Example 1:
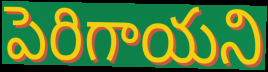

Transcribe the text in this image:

పెరిగాయని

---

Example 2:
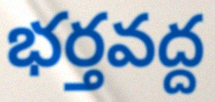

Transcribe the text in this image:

భర్తవద్ద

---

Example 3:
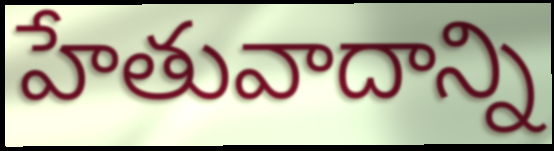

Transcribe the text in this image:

హేతువాదాన్ని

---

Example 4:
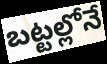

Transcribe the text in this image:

బట్టల్లోనే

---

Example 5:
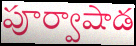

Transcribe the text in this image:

పూర్వాషాడ